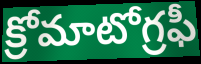
క్రోమాటోగ్రఫీ